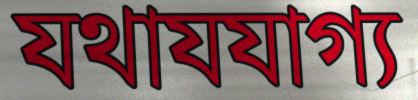
যথাযযাগ্য